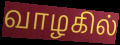
வாழகில்